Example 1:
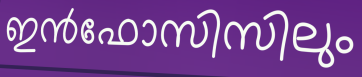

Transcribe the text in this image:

ഇൻഫോസിസിലും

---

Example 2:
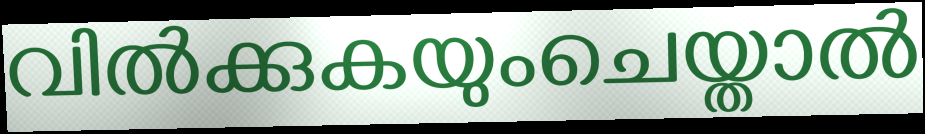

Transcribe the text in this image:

വിൽക്കുകയുംചെയ്താൽ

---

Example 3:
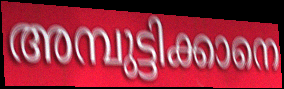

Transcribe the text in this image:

അമ്പുട്ടിക്കാനെ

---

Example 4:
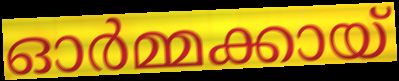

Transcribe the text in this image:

ഓർമ്മക്കായ്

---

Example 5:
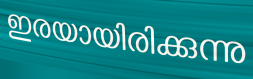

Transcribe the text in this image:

ഇരയായിരിക്കുന്നു